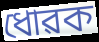
ধোৱক